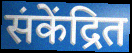
संकेंद्रित